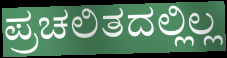
ಪ್ರಚಲಿತದಲ್ಲಿಲ್ಲ